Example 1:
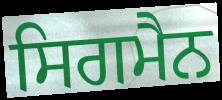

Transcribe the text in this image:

ਸਿਗਮੈਨ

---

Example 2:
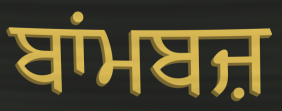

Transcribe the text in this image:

ਬਾਂਮਬਜ਼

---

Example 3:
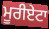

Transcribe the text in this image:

ਮੂਰੀਏਟਾ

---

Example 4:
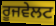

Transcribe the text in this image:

ਰੂਜਵੇਲਟ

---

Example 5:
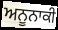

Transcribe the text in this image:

ਅਨੂਨਾਕੀ